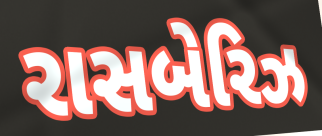
રાસબેરિઝ